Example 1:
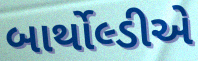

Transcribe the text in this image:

બાર્થોલ્ડીએ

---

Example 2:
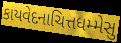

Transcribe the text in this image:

કાયવેદનાચિત્તધમ્મેસુ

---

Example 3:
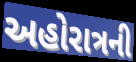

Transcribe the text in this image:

અહોરાત્રની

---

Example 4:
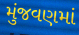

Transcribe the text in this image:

મુંજવણમાં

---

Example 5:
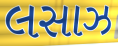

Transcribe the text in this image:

લસાઝ